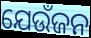
ଯେଉଁଜନ